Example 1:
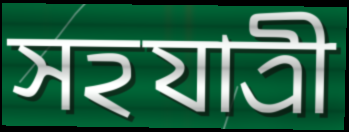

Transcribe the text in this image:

সহযাত্ৰী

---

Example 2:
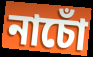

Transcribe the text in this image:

নাচোঁ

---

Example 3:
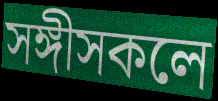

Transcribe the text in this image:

সঙ্গীসকলে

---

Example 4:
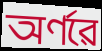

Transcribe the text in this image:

অৰ্ণৱে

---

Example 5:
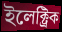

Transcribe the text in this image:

ইলেক্ট্ৰিক